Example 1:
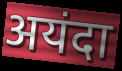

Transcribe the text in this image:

अयंदा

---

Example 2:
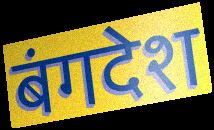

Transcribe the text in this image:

बंगदेश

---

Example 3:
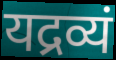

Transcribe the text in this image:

यद्रव्यं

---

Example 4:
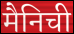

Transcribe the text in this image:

मैनिची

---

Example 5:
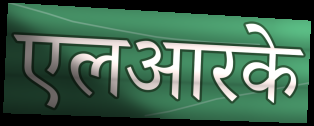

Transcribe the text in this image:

एलआरके